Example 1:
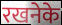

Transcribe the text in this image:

रखनेके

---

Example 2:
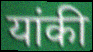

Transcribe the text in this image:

यांकी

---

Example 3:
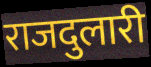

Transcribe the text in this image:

राजदुलारी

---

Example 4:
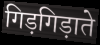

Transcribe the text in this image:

गिड़गिड़ाते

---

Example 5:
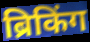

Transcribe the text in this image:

ब्रिकिंग